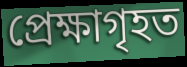
প্ৰেক্ষাগৃহত